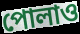
পোলাও